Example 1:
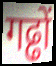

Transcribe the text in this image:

गढ्ढों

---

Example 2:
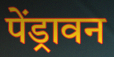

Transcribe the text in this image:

पेंड्रावन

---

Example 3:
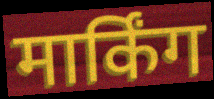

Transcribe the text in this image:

मार्किंग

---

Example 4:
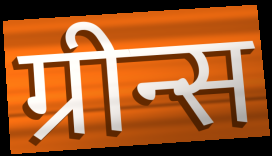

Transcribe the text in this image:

ग्रीन्स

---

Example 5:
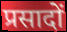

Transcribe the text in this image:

प्रसादों